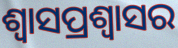
ଶ୍ଵାସପ୍ରଶ୍ଵାସର